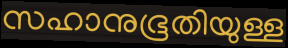
സഹാനുഭൂതിയുള്ള